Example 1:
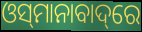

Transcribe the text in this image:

ଓସ୍‌ମାନାବାଦ୍‌ରେ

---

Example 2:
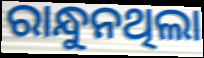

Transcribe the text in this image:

ରାନ୍ଧୁନଥିଲା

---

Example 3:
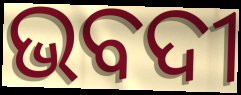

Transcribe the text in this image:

ଭବଦୀ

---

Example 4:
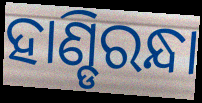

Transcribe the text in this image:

ହାଣ୍ଡିରନ୍ଧା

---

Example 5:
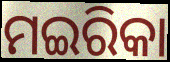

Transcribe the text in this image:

ମଇରିକା